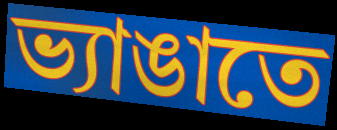
ভ্যাঙাতে